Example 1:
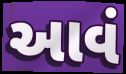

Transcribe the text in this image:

આવં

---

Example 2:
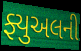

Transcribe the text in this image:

ફ્યુઅલની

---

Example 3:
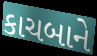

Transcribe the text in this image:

કાચબાને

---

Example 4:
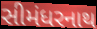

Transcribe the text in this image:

સીમંધરનાથ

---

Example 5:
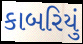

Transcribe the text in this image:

કાબરિયું